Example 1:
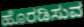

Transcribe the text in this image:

ಹೊರಡಿಸುವ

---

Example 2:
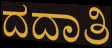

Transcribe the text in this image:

ದದಾತಿ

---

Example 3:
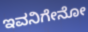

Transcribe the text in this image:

ಇವನಿಗೇನೋ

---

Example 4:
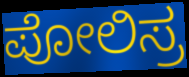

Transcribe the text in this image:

ಪೋಲಿಸ್ರ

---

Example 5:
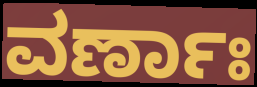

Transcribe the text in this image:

ವರ್ಣಾಃ